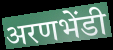
अरणभेंडी